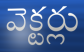
వెక్టర్లు